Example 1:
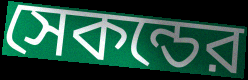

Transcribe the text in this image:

সেকন্ডের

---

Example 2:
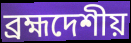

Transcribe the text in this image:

ব্রহ্মদেশীয়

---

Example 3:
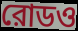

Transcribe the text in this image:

রোডও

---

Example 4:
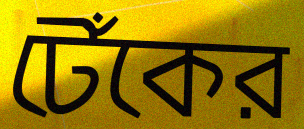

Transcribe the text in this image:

টেঁকের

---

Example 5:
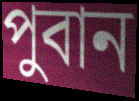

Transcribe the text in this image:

পুবান